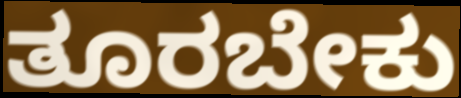
ತೂರಬೇಕು